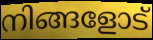
നിങ്ങളോട്